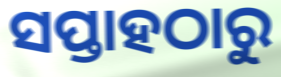
ସପ୍ତାହଠାରୁ